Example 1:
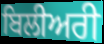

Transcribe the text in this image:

ਬਿਲੀਅਰੀ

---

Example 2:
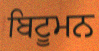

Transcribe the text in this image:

ਬਿਟੂਮਨ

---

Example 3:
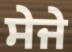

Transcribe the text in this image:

ਸੇਜੇ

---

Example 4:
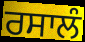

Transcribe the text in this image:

ਰਸਾਲੰ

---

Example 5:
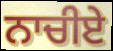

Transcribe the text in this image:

ਨਾਚੀਏ